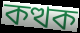
কত্থক